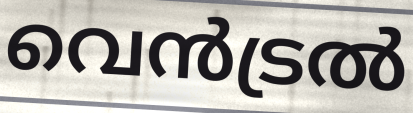
വെൻട്രൽ